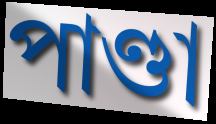
পাণ্ডা